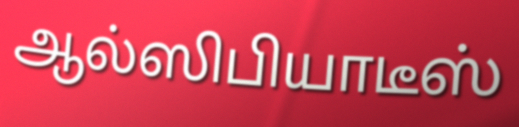
ஆல்ஸிபியாடீஸ்